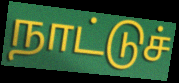
நாட்டுச்